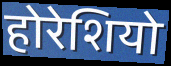
होरेशियो